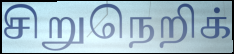
சிறுநெறிக்